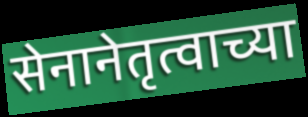
सेनानेतृत्वाच्या